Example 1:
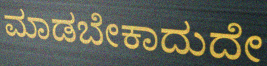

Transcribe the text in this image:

ಮಾಡಬೇಕಾದುದೇ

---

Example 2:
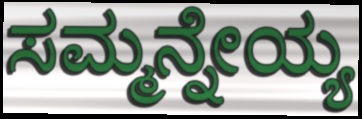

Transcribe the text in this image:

ಸಮ್ಮನ್ನೇಯ್ಯ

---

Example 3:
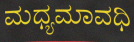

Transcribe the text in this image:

ಮಧ್ಯಮಾವಧಿ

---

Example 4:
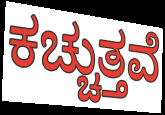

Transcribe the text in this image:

ಕಚ್ಚುತ್ತವೆ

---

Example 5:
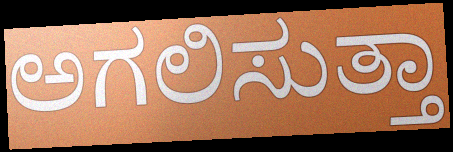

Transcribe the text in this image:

ಅಗಲಿಸುತ್ತಾ